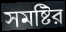
সমষ্টির